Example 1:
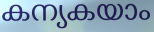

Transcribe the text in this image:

കന്യകയാം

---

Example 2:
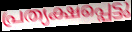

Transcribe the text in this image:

പ്രത്യക്ഷപ്പെട്ടു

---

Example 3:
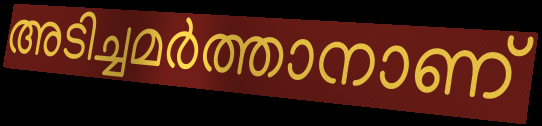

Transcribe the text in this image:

അടിച്ചമർത്താനാണ്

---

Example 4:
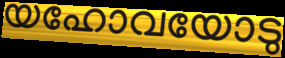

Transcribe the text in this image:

യഹോവയോടു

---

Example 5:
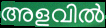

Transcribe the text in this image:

അളവിൽ